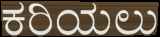
ಕರಿಯಲು